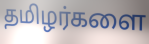
தமிழர்களை